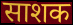
साशक